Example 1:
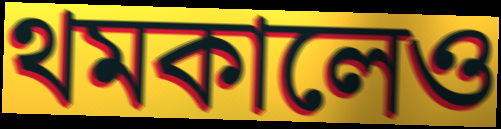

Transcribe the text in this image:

থমকালেও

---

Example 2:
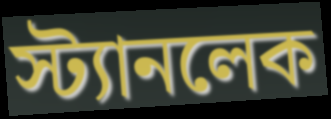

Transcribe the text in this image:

স্ট্যানলেক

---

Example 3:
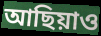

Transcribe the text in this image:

আছিয়াও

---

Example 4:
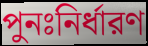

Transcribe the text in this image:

পুনঃনির্ধারণ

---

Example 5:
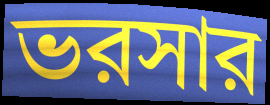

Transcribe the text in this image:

ভরসার